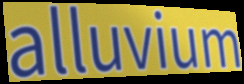
alluvium